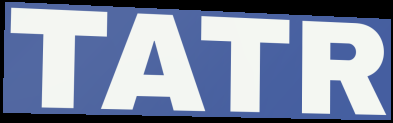
TATR